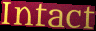
Intact